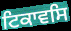
ਟਿਕਾਵਸਿ